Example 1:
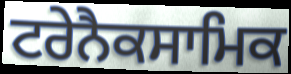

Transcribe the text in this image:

ਟਰੇਨੈਕਸਾਮਿਕ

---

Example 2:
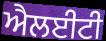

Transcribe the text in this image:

ਐਲਈਟੀ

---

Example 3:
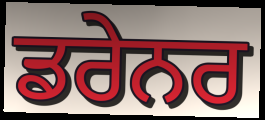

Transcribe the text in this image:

ਡਰੇਨਰ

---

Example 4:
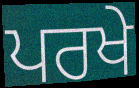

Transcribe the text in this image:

ਪਰਖੇ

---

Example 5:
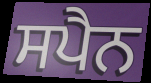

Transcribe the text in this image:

ਸਪੈਨ